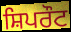
ਸ਼ਿਪਰੌਟ